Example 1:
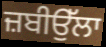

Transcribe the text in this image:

ਜ਼ਬੀਉੱਲਾ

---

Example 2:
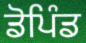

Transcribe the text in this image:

ਡੋਪਿੰਡ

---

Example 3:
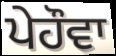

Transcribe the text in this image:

ਪੇਹੌਵਾ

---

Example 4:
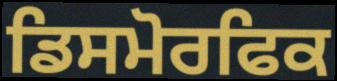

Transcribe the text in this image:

ਡਿਸਮੋਰਫਿਕ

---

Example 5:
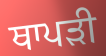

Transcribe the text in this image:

ਥਾਪੜੀ